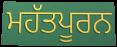
ਮਹੱਤਪੂਰਨ